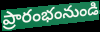
ప్రారంభంనుండి